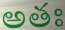
అతః